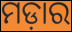
ମଡ଼ାର